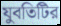
যুবতিটির